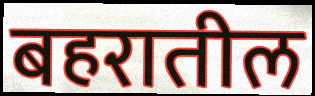
बहरातील